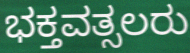
ಭಕ್ತವತ್ಸಲರು